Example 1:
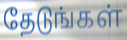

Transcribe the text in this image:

தேடுங்கள்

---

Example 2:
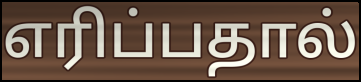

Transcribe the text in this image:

எரிப்பதால்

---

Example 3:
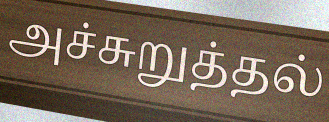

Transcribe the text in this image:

அச்சுறுத்தல்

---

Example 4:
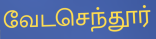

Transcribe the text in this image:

வேடசெந்தூர்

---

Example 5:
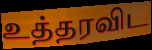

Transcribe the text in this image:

உத்தரவிட